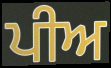
ਪੀਅ